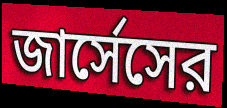
জার্সেসের